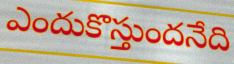
ఎందుకొస్తుందనేది